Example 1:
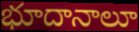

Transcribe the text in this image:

భూదానాలూ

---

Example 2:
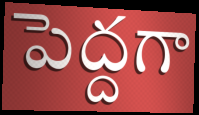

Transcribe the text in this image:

పెద్దగా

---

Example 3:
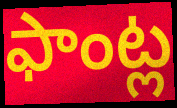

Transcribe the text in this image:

ఫాంట్ల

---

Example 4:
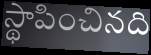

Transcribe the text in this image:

స్థాపించినది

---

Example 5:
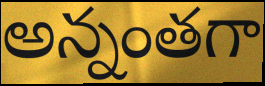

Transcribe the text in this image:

అన్నంతగా